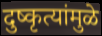
दुष्कृत्यांमुळे